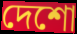
দেশো